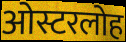
ओस्टरलोह